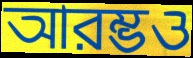
আরম্ভও